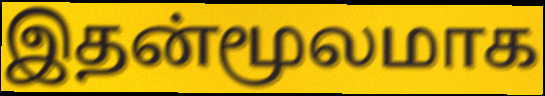
இதன்மூலமாக